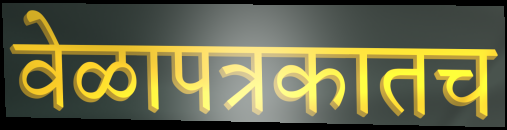
वेळापत्रकातच